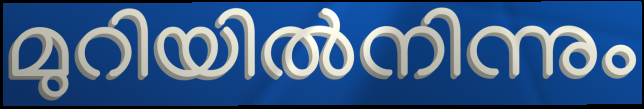
മുറിയിൽനിന്നും